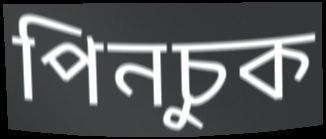
পিনচুক